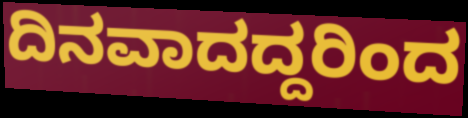
ದಿನವಾದದ್ದರಿಂದ